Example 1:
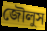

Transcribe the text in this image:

জৌলুস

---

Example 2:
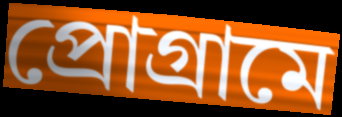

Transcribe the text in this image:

প্রোগ্রামে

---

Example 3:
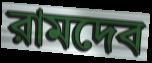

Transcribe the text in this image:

রামদেব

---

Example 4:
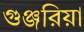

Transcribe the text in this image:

গুঞ্জরিয়া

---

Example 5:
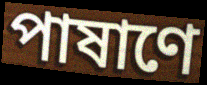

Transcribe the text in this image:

পাষাণে